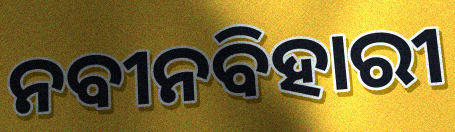
ନବୀନବିହାରୀ